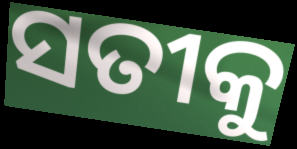
ସତୀକୁ